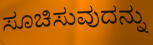
ಸೂಚಿಸುವುದನ್ನು